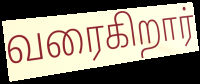
வரைகிறார்